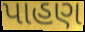
પાહણ